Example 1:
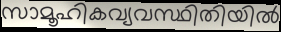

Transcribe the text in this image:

സാമൂഹികവ്യവസ്ഥിതിയിൽ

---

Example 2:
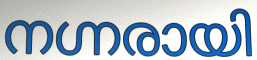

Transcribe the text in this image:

നഗ്നരായി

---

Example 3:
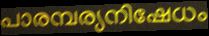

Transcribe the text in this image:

പാരമ്പര്യനിഷേധം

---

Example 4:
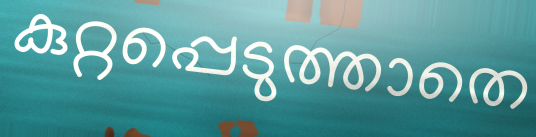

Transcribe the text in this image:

കുറ്റപ്പെടുത്താതെ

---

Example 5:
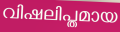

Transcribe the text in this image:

വിഷലിപ്തമായ